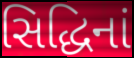
સિદ્ધિનાં